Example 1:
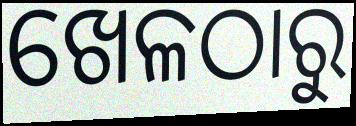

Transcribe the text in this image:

ଖେଳଠାରୁ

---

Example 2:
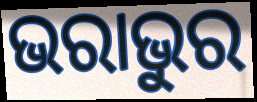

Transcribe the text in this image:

ଭରାଭୁର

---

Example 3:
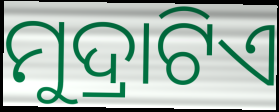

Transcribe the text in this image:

ମୁଦ୍ରାଟିଏ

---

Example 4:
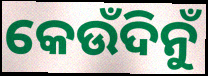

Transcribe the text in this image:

କେଉଁଦିନୁଁ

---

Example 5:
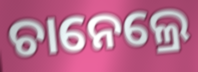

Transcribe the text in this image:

ଚାନେଲ୍ରେ